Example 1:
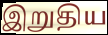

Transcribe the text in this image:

இறுதிய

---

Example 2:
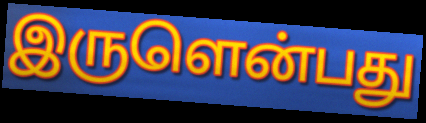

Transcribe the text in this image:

இருளென்பது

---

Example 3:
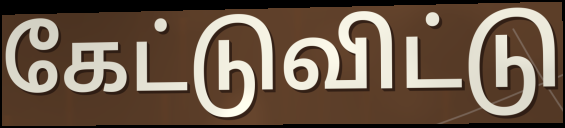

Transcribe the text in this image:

கேட்டுவிட்டு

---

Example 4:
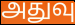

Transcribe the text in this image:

அதுவு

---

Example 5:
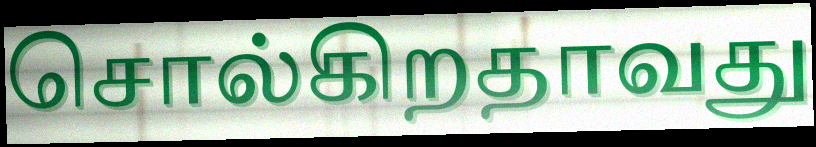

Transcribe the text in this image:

சொல்கிறதாவது